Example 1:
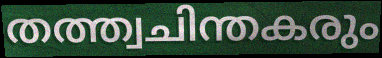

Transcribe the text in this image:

തത്ത്വചിന്തകരും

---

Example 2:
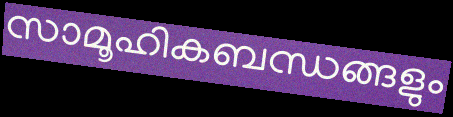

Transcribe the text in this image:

സാമൂഹികബന്ധങ്ങളും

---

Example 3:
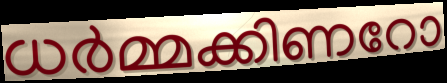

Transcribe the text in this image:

ധർമ്മക്കിണറോ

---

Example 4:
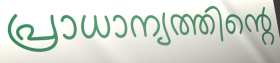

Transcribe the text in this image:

പ്രാധാന്യത്തിന്റെ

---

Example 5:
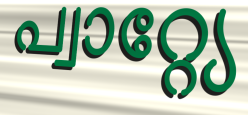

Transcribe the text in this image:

പ്വാറ്റ്യേ